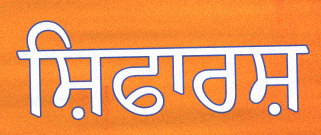
ਸ਼ਿਫਾਰਸ਼